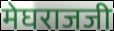
मेघराजजी